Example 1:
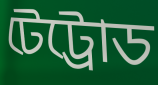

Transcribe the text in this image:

টেট্রোড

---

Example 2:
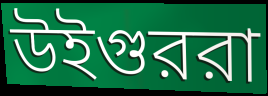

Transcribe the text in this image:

উইগুররা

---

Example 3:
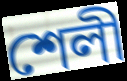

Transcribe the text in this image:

শেলী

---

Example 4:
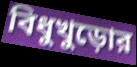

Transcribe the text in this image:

বিধুখুড়োর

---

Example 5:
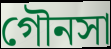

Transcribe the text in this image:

গৌনসা